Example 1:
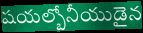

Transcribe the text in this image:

షయల్బోనీయుడైన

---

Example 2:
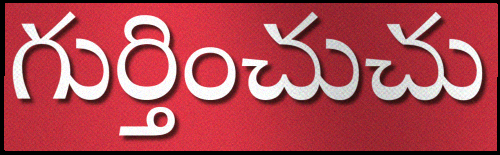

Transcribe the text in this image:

గుర్తించుచు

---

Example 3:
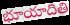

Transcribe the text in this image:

భూయాదితి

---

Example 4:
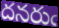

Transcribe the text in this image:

దనరుఁ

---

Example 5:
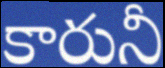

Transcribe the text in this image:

కారునీ